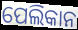
ପେଲିକାନ